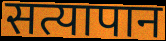
सत्यापान